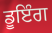
ਡੂਇੰਗ